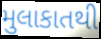
મુલાકાતથી